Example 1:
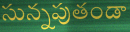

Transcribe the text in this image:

సున్నపుతండా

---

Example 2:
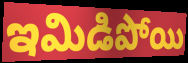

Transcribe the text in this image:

ఇమిడిపోయి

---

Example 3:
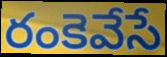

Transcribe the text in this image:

రంకెవేసే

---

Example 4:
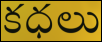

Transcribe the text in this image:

కధలు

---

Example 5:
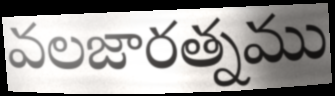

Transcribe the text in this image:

వలజారత్నము